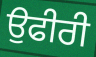
ਉਫੀਰੀ